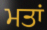
ਮਤਾਂ